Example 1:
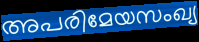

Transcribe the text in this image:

അപരിമേയസംഖ്യ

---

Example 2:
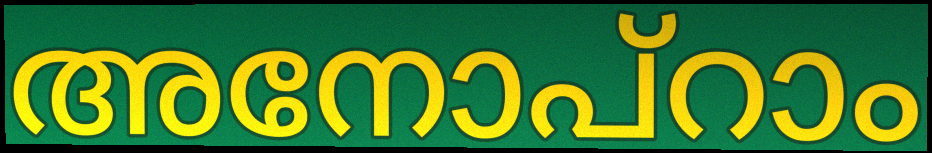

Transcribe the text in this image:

അനോപ്റാം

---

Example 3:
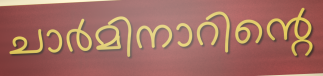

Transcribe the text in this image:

ചാർമിനാറിന്റെ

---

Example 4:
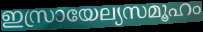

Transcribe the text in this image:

ഇസ്രായേല്യസമൂഹം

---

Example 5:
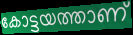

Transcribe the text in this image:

കോട്ടയത്താണ്